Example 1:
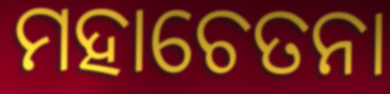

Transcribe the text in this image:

ମହାଚେତନା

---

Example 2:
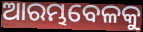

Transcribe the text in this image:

ଆରମ୍ଭବେଳକୁ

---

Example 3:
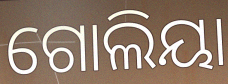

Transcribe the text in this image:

ଗୋଲିୟା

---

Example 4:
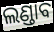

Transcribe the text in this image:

ଲଣ୍ଡାବ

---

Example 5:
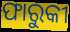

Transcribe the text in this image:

ଫାରୁକୀ